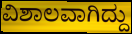
ವಿಶಾಲವಾಗಿದ್ದು